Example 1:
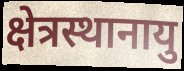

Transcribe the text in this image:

क्षेत्रस्थानायु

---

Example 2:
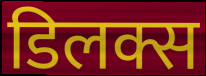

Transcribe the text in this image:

डिलक्स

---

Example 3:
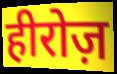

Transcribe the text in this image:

हीरोज़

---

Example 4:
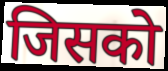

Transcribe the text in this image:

जिसको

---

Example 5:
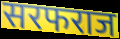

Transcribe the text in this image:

सरफराज